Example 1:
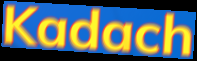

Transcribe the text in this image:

Kadach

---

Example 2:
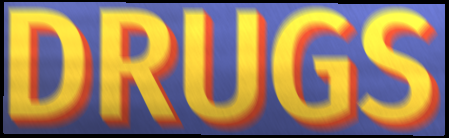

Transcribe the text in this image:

DRUGS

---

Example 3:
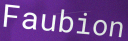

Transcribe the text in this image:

Faubion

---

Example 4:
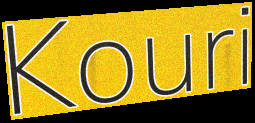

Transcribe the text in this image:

Kouri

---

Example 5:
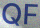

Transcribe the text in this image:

QF